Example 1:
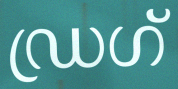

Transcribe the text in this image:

ഡ്രഗ്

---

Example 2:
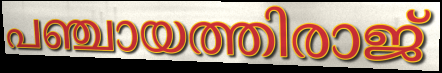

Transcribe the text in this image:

പഞ്ചായത്തിരാജ്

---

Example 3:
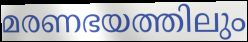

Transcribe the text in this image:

മരണഭയത്തിലും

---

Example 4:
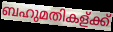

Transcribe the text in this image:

ബഹുമതികള്ക്ക്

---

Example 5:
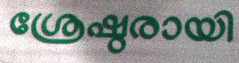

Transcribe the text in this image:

ശ്രേഷ്ഠരായി